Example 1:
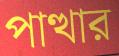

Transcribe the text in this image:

পাত্থার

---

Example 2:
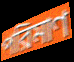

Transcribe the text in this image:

পরিমাণ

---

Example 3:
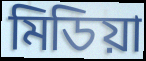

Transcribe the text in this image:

মিডিয়া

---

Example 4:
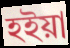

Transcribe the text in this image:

হইয়া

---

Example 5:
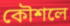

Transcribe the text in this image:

কৌশলে